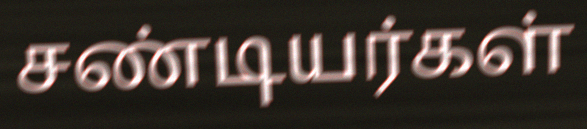
சண்டியர்கள்